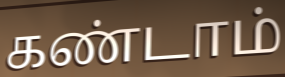
கண்டாம்